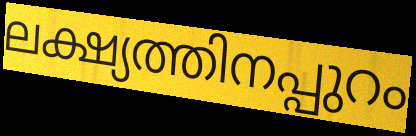
ലക്ഷ്യത്തിനപ്പുറം